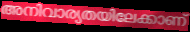
അനിവാര്യതയിലേക്കാണ്